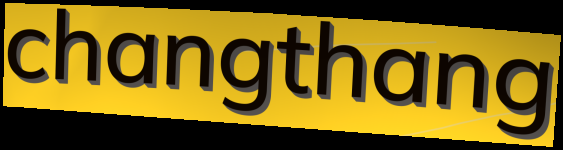
changthang